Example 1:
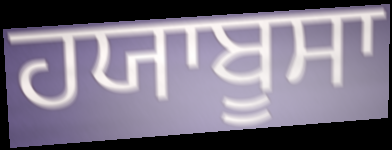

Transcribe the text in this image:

ਹਯਾਬੂਸਾ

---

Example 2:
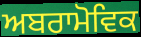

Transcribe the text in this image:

ਅਬਰਾਮੋਵਿਕ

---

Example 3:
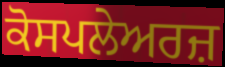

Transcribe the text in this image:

ਕੋਸਪਲੇਅਰਜ਼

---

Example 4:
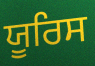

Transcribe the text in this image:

ਯੂਰਿਸ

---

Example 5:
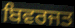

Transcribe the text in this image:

ਬਿਵਰਜਤ